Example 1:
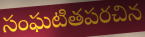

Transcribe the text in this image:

సంఘటితపరచిన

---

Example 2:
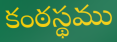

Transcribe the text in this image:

కంఠస్థము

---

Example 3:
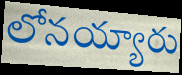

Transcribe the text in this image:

లోనయ్యారు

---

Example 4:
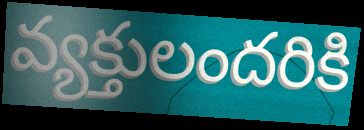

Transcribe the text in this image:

వ్యక్తులందరికి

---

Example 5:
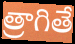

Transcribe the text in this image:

త్రాగితే